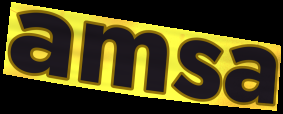
amsa